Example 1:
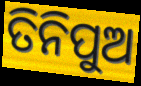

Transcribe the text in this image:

ତିନିପୁଅ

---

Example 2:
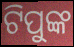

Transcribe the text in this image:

ଟିପୁଙ୍କ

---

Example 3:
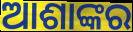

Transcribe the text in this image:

ଆଶାଙ୍କର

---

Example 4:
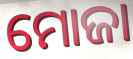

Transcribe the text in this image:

ମୋଜା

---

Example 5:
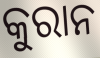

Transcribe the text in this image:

କୁରାନ